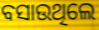
ବସାଉଥିଲେ